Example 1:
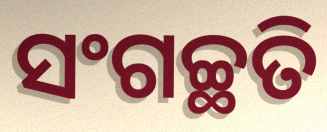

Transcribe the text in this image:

ସଂଗଚ୍ଛତି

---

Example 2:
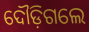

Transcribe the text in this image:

ଦୌଡ଼ିଗଲେ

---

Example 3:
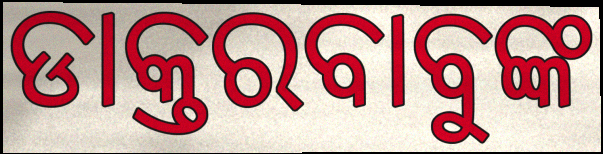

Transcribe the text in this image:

ଡାକ୍ତରବାବୁଙ୍କ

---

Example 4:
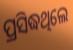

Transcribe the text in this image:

ପ୍ରସିଦ୍ଧଥିଲେ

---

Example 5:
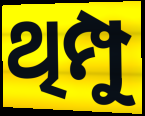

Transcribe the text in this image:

ଥିମ୍ପୁ